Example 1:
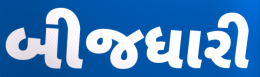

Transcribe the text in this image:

બીજધારી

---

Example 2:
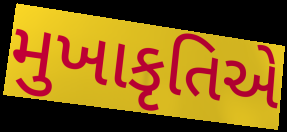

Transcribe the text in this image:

મુખાકૃતિએ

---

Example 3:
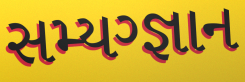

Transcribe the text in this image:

સમ્યગ્જ્ઞાન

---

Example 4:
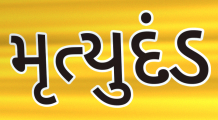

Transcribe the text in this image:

મૃત્યુદંડ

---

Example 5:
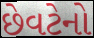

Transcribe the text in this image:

છેવટેનો